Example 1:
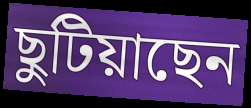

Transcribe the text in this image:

ছুটিয়াছেন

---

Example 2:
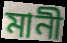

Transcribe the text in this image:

মানী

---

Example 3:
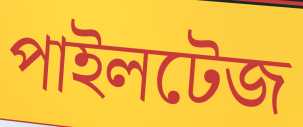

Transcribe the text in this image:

পাইলটেজ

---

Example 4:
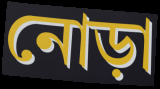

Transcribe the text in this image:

নোড়া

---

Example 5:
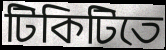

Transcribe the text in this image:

টিকিটিতে